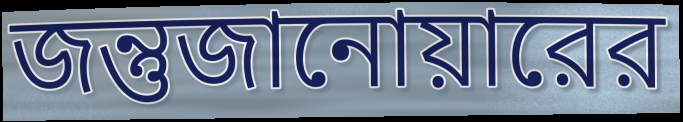
জন্তুজানোয়ারের